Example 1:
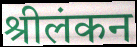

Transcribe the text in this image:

श्रीलंकन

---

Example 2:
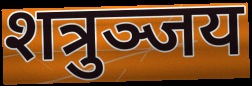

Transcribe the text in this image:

शत्रुञ्जय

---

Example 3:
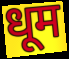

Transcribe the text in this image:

धूम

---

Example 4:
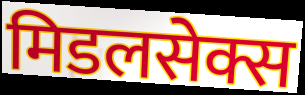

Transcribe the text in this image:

मिडलसेक्स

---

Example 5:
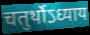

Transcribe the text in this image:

चतुर्थोऽध्याय